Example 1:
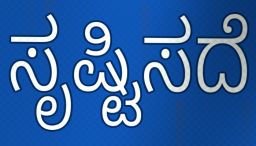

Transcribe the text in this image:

ಸೃಷ್ಟಿಸದೆ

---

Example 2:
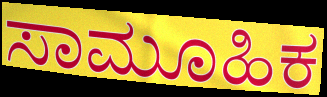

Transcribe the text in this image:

ಸಾಮೂಹಿಕ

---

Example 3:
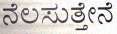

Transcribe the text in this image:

ನೆಲಸುತ್ತೇನೆ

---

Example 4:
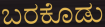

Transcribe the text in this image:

ಬರಕೊಡು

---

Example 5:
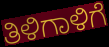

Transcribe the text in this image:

ತಿಳಿಗಾಳಿಗೆ